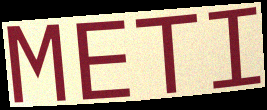
METI